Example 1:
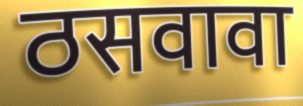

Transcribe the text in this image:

ठसवावा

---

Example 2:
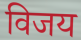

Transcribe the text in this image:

विजय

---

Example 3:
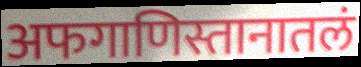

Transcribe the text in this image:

अफगाणिस्तानातलं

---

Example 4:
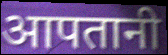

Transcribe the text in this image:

आपतानी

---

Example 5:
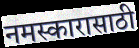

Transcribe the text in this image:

नमस्कारासाठी